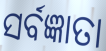
ସର୍ବଜ୍ଞାତା